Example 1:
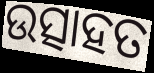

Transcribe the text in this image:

ଉତ୍ସାହତ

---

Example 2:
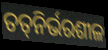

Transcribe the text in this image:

ତତ୍‍ନିର୍ଭରଶୀଳ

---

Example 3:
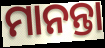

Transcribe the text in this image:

ମାନନ୍ତା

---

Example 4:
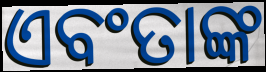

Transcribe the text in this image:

ଏବଂତାଙ୍କ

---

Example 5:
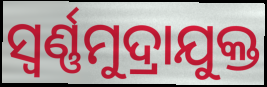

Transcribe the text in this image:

ସ୍ବର୍ଣ୍ଣମୁଦ୍ରାଯୁକ୍ତ